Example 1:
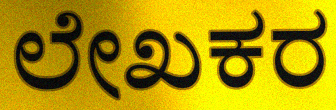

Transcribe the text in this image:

ಲೇಖಕರ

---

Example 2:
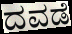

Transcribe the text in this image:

ದವಡೆ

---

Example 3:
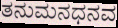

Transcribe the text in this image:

ತನುಮನಧನವ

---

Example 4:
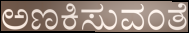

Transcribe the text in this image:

ಅಣಕಿಸುವಂತೆ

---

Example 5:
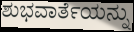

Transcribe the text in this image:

ಶುಭವಾರ್ತೆಯನ್ನು